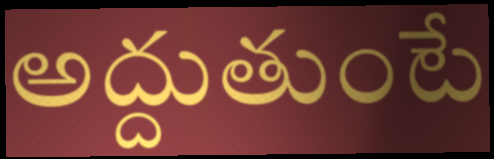
అద్దుతుంటే